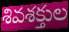
శివశక్తుల